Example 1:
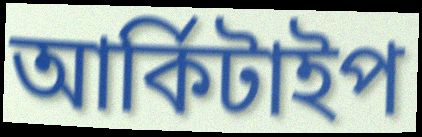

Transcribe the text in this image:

আৰ্কিটাইপ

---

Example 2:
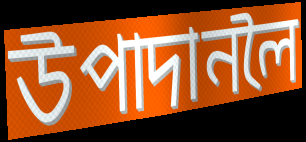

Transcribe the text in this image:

উপাদানলৈ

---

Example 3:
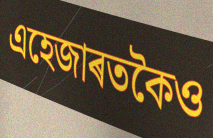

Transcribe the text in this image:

এহেজাৰতকৈও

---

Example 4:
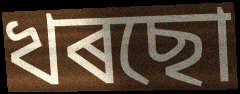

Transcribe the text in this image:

খৰছো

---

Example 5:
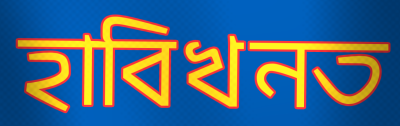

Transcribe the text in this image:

হাবিখনত